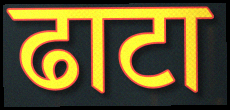
ढाटा